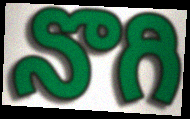
నొగి